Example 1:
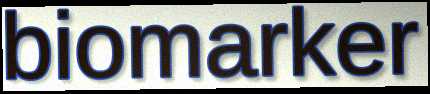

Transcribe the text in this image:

biomarker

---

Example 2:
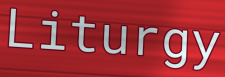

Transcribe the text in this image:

Liturgy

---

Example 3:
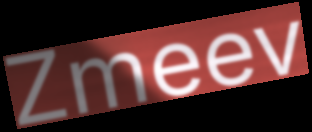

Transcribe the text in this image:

Zmeev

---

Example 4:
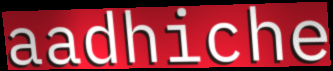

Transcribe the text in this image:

aadhiche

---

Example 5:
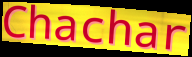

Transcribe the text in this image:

Chachar